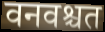
वनवश्चत